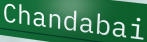
Chandabai